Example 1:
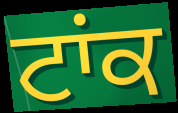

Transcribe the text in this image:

ਟਾਂਕ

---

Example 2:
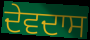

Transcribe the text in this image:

ਦੇਵਦਾਸ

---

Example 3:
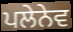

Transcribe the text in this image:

ਪਲੇਨੇਵ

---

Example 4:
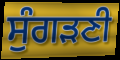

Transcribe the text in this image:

ਸੁੰਗੜਣੀ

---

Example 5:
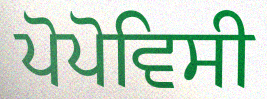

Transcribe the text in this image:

ਪੋਪੋਵਿਸੀ